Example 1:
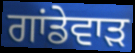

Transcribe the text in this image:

ਗਾਂਡੇਵਾੜ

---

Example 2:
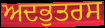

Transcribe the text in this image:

ਅਦਭੁਤਰਸ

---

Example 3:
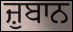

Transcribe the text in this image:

ਜ਼ੁਬਾਨ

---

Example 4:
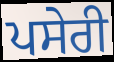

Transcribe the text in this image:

ਪਸੇਰੀ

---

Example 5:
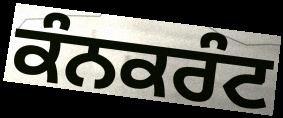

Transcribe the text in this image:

ਕੰਨਕਰੰਟ